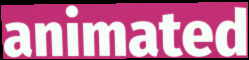
animated